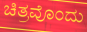
ಚಿತ್ರವೊಂದು